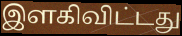
இளகிவிட்டது